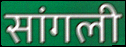
सांगली